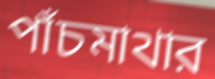
পাঁচমাথার